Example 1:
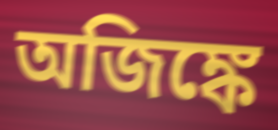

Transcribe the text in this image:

অজিঙ্কে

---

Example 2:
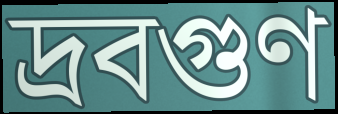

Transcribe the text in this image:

দ্রবগুণ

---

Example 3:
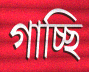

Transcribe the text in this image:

গাচ্ছি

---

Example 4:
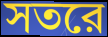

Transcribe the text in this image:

সতরে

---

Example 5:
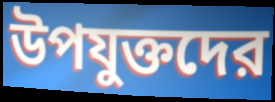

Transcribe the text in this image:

উপযুক্তদের